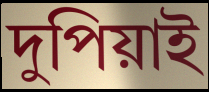
দুপিয়াই